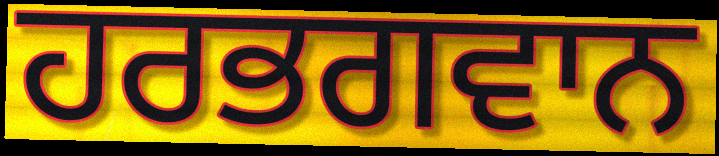
ਹਰਭਗਵਾਨ